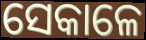
ସେକାଳେ